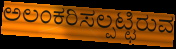
ಅಲಂಕರಿಸಲ್ಪಟ್ಟಿರುವ